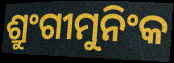
ଶ୍ରୁଂଗୀମୁନିଂକ